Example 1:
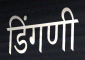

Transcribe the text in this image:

डिंगणी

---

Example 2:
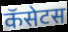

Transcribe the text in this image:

कॅसेटस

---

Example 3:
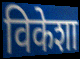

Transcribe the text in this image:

विकेशा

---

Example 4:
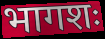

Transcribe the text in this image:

भागशः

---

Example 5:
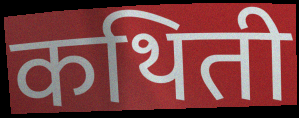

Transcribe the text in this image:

कथिती